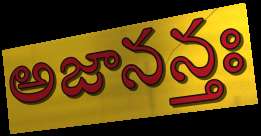
అజానన్తః